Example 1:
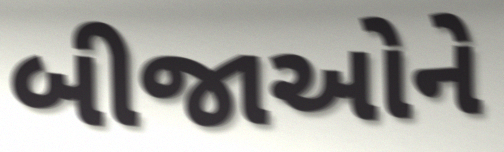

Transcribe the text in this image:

બીજાઓને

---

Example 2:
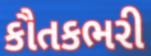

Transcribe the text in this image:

કૌતકભરી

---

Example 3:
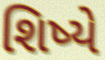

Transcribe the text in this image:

શિષ્યે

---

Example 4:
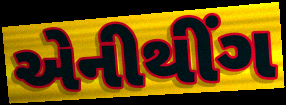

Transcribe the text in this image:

એનીથીંગ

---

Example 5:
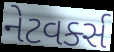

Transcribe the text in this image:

નેટવર્ક્સ